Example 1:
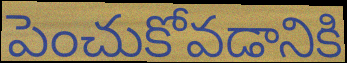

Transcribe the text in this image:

పెంచుకోవడానికి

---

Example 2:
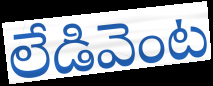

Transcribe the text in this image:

లేడివెంట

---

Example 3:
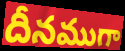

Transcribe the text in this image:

దీనముగా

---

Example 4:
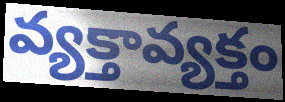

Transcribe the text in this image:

వ్యక్తావ్యక్తం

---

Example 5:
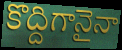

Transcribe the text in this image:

కొద్దిగానైనా